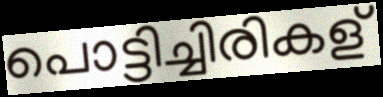
പൊട്ടിച്ചിരികള്